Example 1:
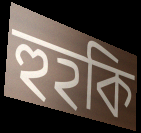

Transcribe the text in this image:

হুহকি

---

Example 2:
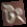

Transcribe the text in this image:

টং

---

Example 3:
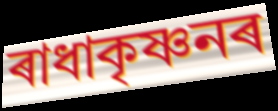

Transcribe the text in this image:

ৰাধাকৃষ্ণনৰ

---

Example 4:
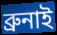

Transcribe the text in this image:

ব্ৰুনাই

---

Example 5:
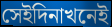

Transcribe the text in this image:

সেইদিনাখনেই